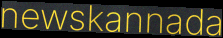
newskannada